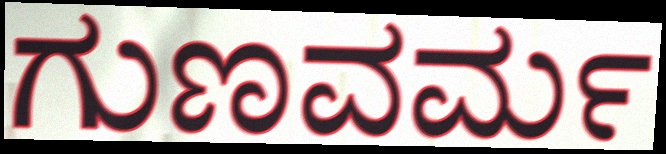
ಗುಣವರ್ಮ